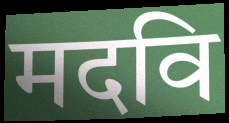
मदवि